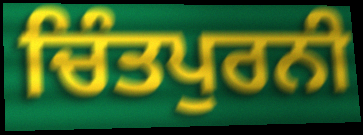
ਚਿੰਤਪੁਰਨੀ